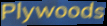
Plywoods